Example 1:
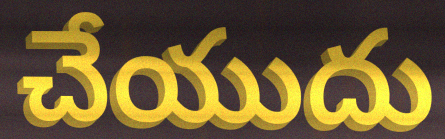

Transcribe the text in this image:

చేయుదు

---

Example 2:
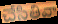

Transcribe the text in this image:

చేసితివా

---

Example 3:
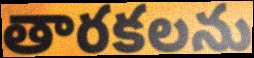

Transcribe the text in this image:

తారకలను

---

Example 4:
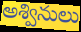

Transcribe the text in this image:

అశ్వినులు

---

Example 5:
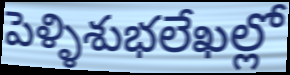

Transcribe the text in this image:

పెళ్ళిశుభలేఖల్లో